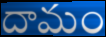
దామం